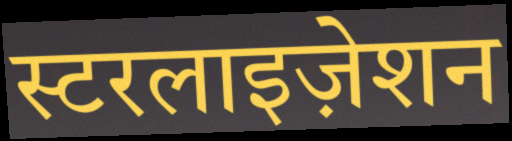
स्टरलाइज़ेशन